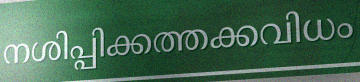
നശിപ്പിക്കത്തക്കവിധം